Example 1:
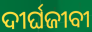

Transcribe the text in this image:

ଦୀର୍ଘଜୀବୀ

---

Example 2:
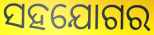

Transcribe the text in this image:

ସହଯୋଗର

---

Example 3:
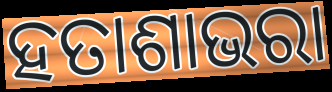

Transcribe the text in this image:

ହତାଶାଭରା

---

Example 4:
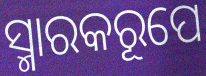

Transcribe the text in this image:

ସ୍ମାରକରୂପେ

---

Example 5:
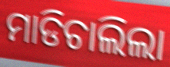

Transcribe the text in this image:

ମାଡିଚାଲିଲା